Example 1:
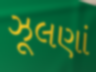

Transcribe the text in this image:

ઝૂલણાં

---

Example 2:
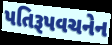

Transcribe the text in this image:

પતિરૂપવચનેન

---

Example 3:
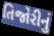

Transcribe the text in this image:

તિજોરીનું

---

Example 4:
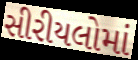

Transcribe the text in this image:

સીરીયલોમાં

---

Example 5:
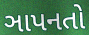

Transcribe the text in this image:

ઞાપનતો